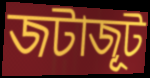
জটাজূট